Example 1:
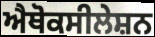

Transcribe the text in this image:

ਐਥੋਕਸੀਲੇਸ਼ਨ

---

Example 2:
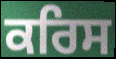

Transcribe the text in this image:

ਕਰਿਸ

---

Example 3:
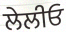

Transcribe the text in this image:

ਲੇਲੀਓ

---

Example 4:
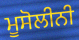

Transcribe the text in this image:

ਮੂਸੋਲੀਨੀ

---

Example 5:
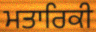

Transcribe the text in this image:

ਮਤਾਰਿਕੀ